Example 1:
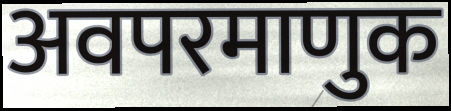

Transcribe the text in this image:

अवपरमाणुक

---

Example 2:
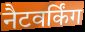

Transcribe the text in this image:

नैटवर्किंग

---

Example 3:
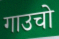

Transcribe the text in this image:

गाउचो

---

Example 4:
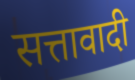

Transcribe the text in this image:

सत्तावादी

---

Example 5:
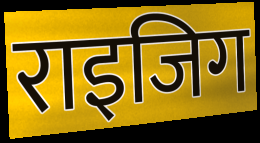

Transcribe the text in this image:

राइजिग